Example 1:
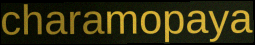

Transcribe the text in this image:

charamopaya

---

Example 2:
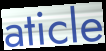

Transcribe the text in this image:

aticle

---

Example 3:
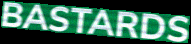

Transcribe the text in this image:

BASTARDS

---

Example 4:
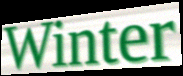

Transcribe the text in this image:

Winter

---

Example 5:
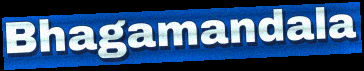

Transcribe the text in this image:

Bhagamandala